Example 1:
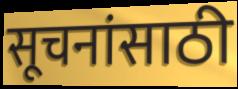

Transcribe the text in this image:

सूचनांसाठी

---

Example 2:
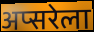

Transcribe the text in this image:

अप्सरेला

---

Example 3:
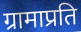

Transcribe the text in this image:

ग्रामाप्रति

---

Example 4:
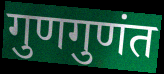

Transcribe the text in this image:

गुणगुणंत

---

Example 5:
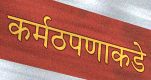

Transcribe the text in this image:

कर्मठपणाकडे